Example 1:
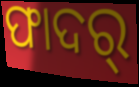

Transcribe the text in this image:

ଫାଦର୍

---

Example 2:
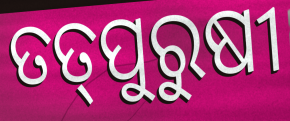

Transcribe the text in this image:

ତତ୍‌ପୁରୁଷୀ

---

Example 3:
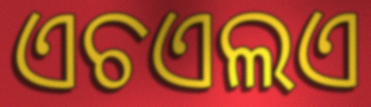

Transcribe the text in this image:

ଏଚଏଲଏ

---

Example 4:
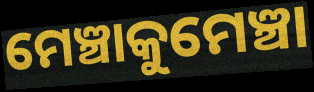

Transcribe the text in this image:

ମେଞ୍ଚାକୁମେଞ୍ଚା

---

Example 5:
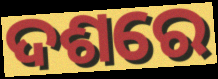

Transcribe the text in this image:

ଦଶରେ